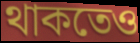
থাকতেও